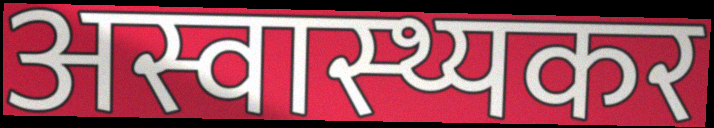
अस्वास्थ्यकर